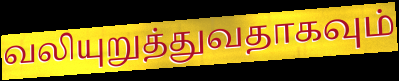
வலியுறுத்துவதாகவும்